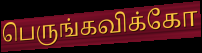
பெருங்கவிக்கோ